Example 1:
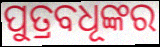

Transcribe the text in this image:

ପୁତ୍ରବଧୂଙ୍କର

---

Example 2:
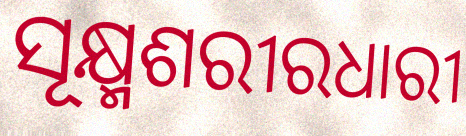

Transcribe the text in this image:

ସୂକ୍ଷ୍ମଶରୀରଧାରୀ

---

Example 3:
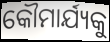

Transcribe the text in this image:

କୌମାର୍ଯ୍ୟକୁ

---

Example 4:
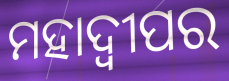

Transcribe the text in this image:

ମହାଦ୍ୱୀପର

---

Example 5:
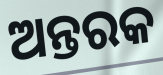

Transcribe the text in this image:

ଅନ୍ତରକ